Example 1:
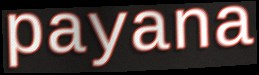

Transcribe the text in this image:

payana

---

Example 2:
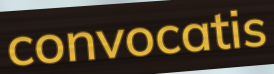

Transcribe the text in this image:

convocatis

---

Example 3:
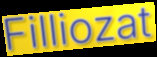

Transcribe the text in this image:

Filliozat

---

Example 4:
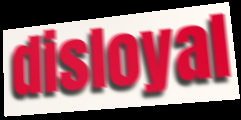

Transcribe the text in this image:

disloyal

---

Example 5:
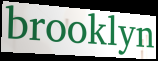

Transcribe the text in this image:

brooklyn